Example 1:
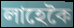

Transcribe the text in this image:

লাহেকৈ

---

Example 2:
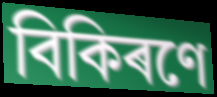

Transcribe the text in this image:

বিকিৰণে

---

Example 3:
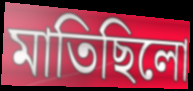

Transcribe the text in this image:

মাতিছিলো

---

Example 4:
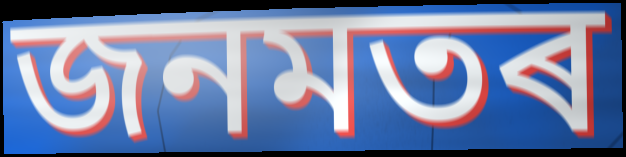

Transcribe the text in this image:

জনমতৰ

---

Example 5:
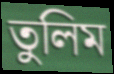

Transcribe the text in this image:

তুলিম